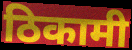
ठिकामी